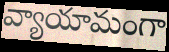
వ్యాయామంగా